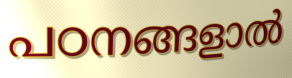
പഠനങ്ങളാൽ